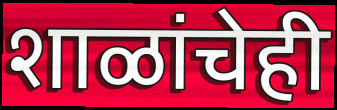
शाळांचेही